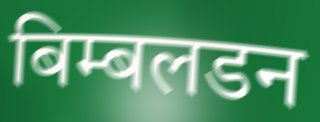
बिम्बलडन